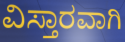
ವಿಸ್ತಾರವಾಗಿ